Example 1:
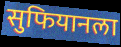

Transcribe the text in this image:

सुफियानला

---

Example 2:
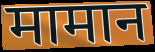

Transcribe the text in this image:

मामान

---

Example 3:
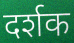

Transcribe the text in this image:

दर्शक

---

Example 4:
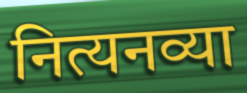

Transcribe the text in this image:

नित्यनव्या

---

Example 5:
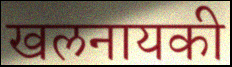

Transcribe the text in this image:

खलनायकी